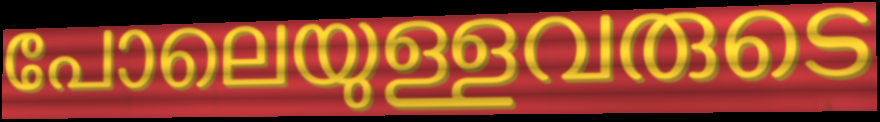
പോലെയുള്ളവരുടെ